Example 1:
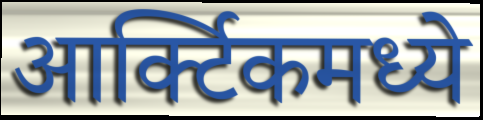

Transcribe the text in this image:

आर्क्टिकमध्ये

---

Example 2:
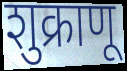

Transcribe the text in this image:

शुक्राणू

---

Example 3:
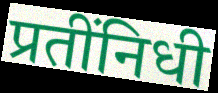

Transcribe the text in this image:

प्रतींनिधी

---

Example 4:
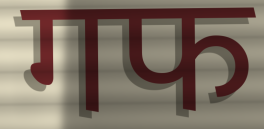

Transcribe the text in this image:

गफ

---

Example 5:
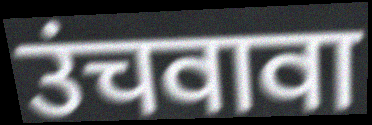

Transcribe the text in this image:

उंचवावा